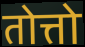
तोत्तो